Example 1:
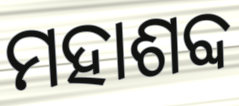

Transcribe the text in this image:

ମହାଶବ୍ଦ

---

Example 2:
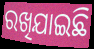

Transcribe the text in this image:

ରଖିଯାଇଛି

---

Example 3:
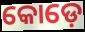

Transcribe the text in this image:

କୋଡ଼େ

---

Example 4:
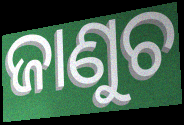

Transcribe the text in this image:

ଜାଣୁଚ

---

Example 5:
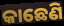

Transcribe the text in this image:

କାଛେଣି